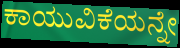
ಕಾಯುವಿಕೆಯನ್ನೇ